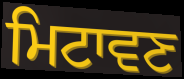
ਮਿਟਾਵਣ